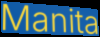
Manita